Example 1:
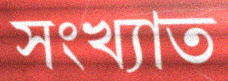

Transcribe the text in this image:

সংখ্যাত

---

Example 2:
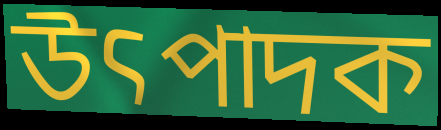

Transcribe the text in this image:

উৎপাদক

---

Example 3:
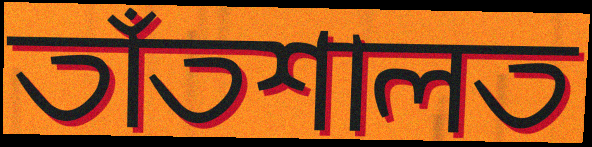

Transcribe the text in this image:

তাঁতশালত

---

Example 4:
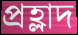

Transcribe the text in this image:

প্ৰহ্লাদ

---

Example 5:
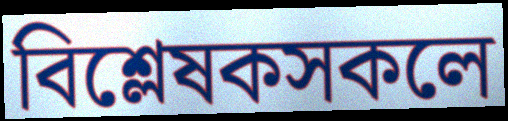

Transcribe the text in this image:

বিশ্লেষকসকলে